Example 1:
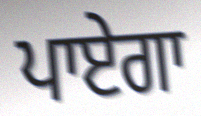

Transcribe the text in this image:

ਪਾਏਗਾ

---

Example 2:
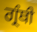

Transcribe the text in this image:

ਗ੍ਰੰਥੀ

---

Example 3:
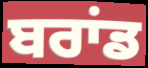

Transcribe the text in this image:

ਬਰਾਂਡ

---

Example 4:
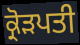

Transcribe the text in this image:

ਕ੍ਰੋੜਪਤੀ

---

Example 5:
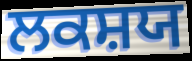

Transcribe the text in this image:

ਲਕਸ਼ਯ